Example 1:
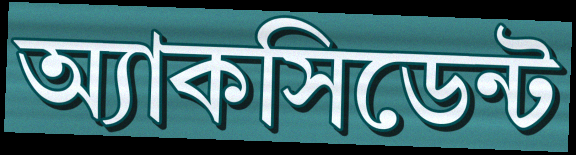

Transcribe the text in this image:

অ্যাকসিডেন্ট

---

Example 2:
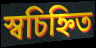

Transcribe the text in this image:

স্বচিহ্নিত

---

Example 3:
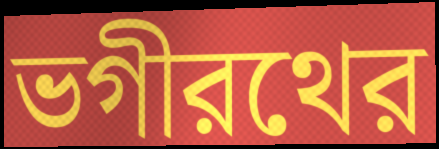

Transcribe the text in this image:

ভগীরথের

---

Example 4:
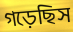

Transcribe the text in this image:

গড়েছিস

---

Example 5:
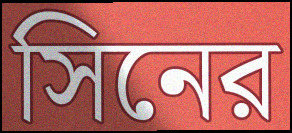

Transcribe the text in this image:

সিনের